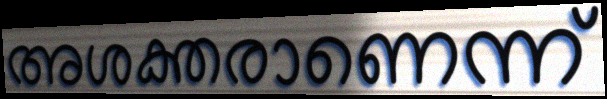
അശക്തരാണെന്ന്